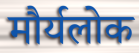
मौर्यलोक